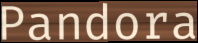
Pandora